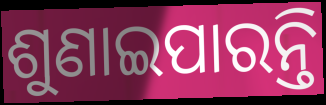
ଶୁଣାଇପାରନ୍ତି